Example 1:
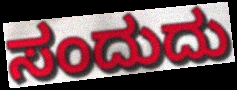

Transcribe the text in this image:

ಸಂದುದು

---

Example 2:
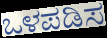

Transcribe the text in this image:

ಒಳಪಡಿಸ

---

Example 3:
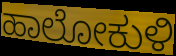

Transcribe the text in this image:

ಹಾಲೋಕುಳಿ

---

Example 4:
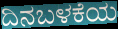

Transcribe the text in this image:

ದಿನಬಳಕೆಯ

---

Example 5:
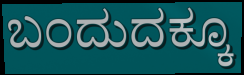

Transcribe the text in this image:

ಬಂದುದಕ್ಕೂ